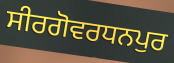
ਸੀਰਗੋਵਰਧਨਪੁਰ